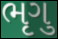
ભૃગુ